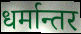
धर्मान्तर